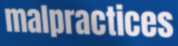
malpractices